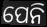
ପେନି